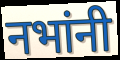
नभांनी